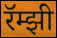
रॅम्झी